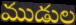
ముడుల